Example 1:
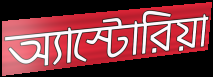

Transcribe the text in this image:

অ্যাস্টোরিয়া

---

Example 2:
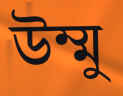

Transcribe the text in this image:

উম্মু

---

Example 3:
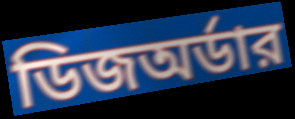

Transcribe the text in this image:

ডিজঅর্ডার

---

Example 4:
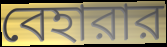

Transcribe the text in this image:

বেহারার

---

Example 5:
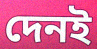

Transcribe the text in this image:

দেনই